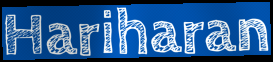
Hariharan